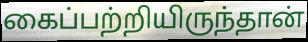
கைப்பற்றியிருந்தான்